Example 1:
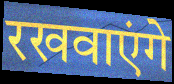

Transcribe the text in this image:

रखवाएंगे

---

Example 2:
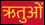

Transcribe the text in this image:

ऋतुओं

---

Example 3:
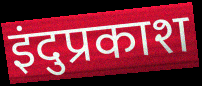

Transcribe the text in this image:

इंदुप्रकाश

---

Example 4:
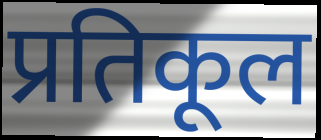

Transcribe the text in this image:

प्रतिकूल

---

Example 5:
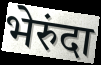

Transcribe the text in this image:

भेरुंदा